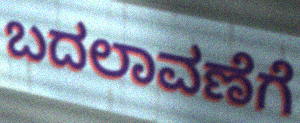
ಬದಲಾವಣೆಗೆ